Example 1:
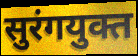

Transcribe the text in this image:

सुरंगयुक्त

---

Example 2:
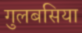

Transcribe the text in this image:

गुलबसिया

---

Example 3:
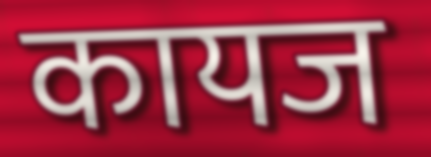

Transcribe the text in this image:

कायज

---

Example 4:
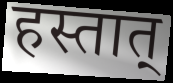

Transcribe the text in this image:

हस्तात्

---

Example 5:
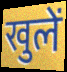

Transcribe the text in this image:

खुलें